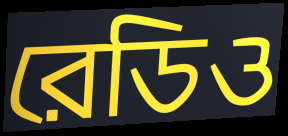
রেডিও